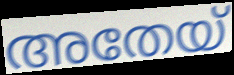
അതേയ്